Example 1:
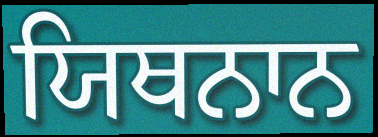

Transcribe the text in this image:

ਯਿਥਨਾਨ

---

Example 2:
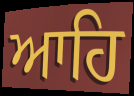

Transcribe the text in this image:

ਆਹਿ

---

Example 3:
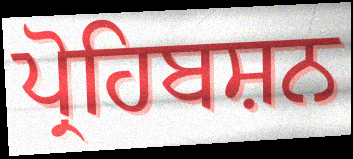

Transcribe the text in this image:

ਪ੍ਰੋਹਿਬਸ਼ਨ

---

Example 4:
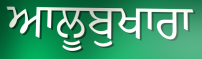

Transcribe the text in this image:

ਆਲੂਬੁਖਾਰਾ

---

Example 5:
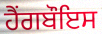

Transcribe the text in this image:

ਹੈਂਗਬੌਇਸ